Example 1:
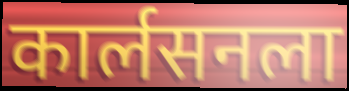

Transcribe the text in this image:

कार्लसनला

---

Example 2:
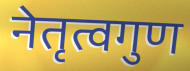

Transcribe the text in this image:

नेतृत्वगुण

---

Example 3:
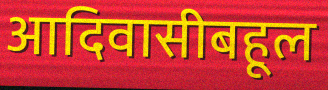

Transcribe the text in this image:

आदिवासीबहूल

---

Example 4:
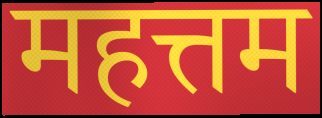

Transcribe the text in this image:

महत्तम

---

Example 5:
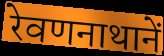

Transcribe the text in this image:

रेवणनाथानें